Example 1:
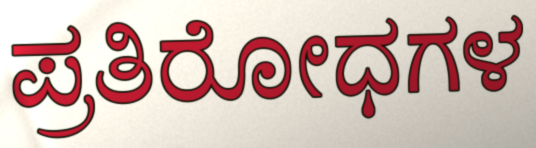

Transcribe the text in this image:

ಪ್ರತಿರೋಧಗಳ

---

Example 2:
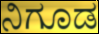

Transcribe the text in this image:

ನಿಗೂಡ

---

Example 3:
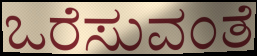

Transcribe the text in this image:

ಒರೆಸುವಂತೆ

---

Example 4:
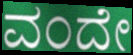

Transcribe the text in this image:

ವಂದೇ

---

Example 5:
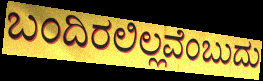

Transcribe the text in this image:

ಬಂದಿರಲಿಲ್ಲವೆಂಬುದು